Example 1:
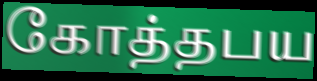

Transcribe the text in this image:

கோத்தபய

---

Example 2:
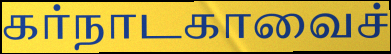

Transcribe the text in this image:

கர்நாடகாவைச்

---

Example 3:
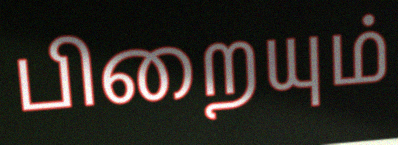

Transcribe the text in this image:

பிறையும்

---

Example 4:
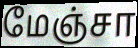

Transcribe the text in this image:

மேஞ்சா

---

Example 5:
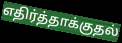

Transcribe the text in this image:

எதிர்த்தாக்குதல்